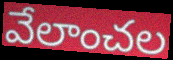
వేలాంచల